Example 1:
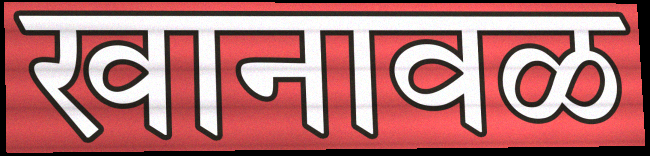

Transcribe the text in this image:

खानावळ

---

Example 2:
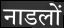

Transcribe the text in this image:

नाडलों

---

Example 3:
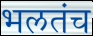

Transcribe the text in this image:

भलतंच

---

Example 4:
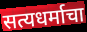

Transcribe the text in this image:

सत्यधर्माचा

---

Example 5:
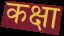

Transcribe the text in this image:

कक्षा